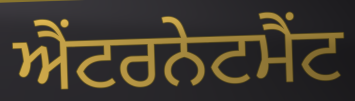
ਐਂਟਰਨੇਟਮੈਂਟ